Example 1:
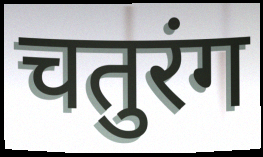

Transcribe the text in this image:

चतुरंग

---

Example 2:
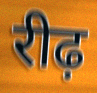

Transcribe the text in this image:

रीढ़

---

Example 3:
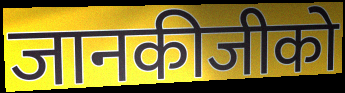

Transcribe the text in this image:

जानकीजीको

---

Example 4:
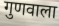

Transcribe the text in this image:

गुणवाला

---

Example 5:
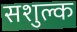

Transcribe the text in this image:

सशुल्क